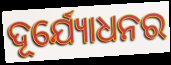
ଦୂର୍ଯ୍ୟୋଧନର